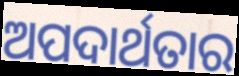
ଅପଦାର୍ଥତାର